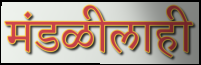
मंडळीलाही